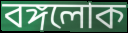
বঙ্গলোক